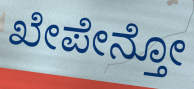
ಖೇಪೇನ್ತೋ